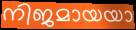
നിജമായയാ